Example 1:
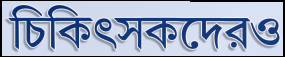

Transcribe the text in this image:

চিকিৎসকদেরও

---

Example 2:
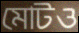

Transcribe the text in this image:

মোটও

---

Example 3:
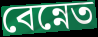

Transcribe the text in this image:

বেন্নেত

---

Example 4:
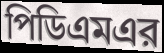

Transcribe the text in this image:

পিডিএমএর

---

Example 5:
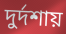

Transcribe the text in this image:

দুর্দশায়